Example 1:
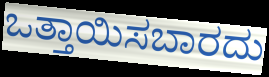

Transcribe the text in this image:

ಒತ್ತಾಯಿಸಬಾರದು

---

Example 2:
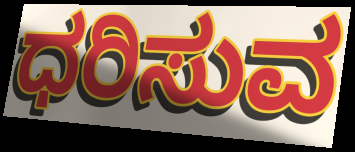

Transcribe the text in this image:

ಧರಿಸುವ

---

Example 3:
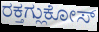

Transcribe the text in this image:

ರಕ್ತಗ್ಲುಕೋಸ್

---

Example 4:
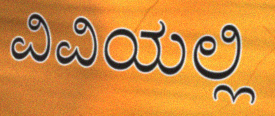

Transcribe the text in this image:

ವಿವಿಯಲ್ಲಿ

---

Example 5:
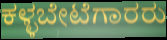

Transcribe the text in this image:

ಕಳ್ಳಬೇಟೆಗಾರರು